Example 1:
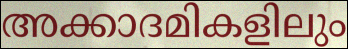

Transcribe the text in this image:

അക്കാദമികളിലും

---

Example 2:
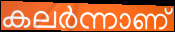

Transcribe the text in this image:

കലർന്നാണ്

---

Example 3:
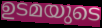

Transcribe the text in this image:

ഉടമയുടെ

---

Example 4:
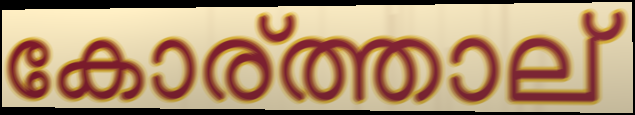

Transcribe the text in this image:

കോര്ത്താല്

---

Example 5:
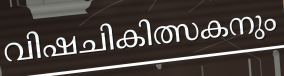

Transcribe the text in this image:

വിഷചികിത്സകനും